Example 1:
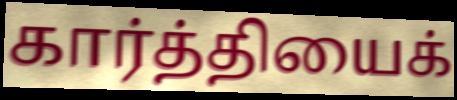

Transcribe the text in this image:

கார்த்தியைக்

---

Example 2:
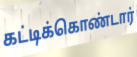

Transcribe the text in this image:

கட்டிக்கொண்டார்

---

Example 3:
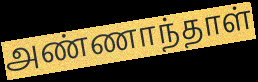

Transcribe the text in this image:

அண்ணாந்தாள்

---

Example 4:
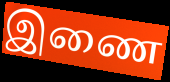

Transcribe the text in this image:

இணை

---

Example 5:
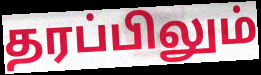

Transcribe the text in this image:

தரப்பிலும்